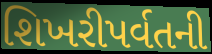
શિખરીપર્વતની